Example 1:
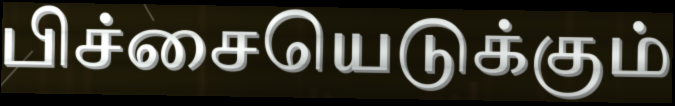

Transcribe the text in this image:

பிச்சையெடுக்கும்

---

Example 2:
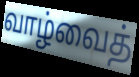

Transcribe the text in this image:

வாழ்வைத்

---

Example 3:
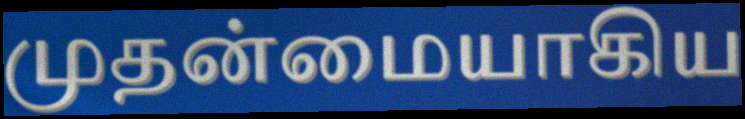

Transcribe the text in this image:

முதன்மையாகிய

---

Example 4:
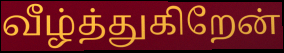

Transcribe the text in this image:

வீழ்த்துகிறேன்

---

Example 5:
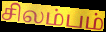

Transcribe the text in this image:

சிலம்பம்